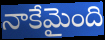
నాకేమైంది